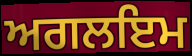
ਅਗਲਇਮ